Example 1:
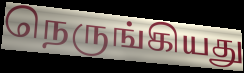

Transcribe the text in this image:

நெருங்கியது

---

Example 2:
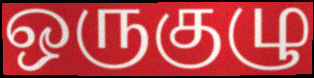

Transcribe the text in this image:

ஒருகுழு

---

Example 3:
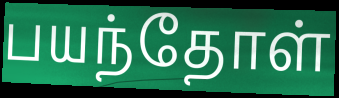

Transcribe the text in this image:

பயந்தோள்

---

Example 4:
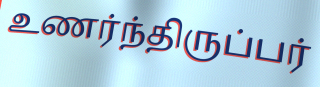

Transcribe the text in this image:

உணர்ந்திருப்பர்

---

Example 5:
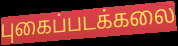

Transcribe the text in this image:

புகைப்படக்கலை